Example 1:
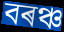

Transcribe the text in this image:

বৰঞ্চ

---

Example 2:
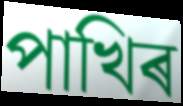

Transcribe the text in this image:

পাখিৰ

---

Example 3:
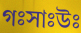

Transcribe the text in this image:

গঃসাঃউঃ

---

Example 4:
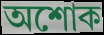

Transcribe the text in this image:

অশোক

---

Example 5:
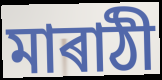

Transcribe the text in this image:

মাৰাঠী